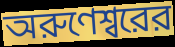
অরুণেশ্বরের